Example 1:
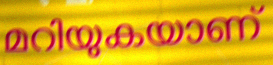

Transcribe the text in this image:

മറിയുകയാണ്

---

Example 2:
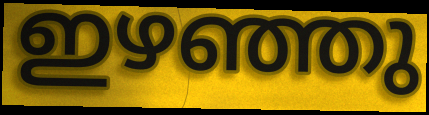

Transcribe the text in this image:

ഇഴഞ്ഞു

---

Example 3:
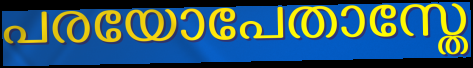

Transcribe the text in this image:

പരയോപേതാസ്തേ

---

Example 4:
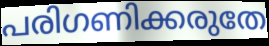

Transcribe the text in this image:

പരിഗണിക്കരുതേ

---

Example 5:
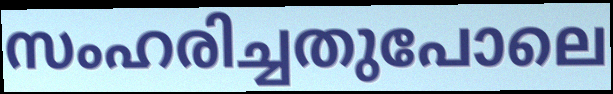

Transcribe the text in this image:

സംഹരിച്ചതുപോലെ